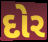
દોર